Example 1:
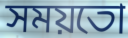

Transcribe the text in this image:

সময়তো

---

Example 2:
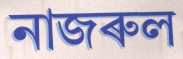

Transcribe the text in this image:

নাজৰুল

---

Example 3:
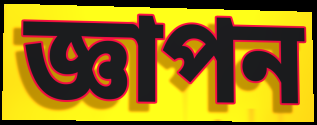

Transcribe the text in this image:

জ্ঞাপন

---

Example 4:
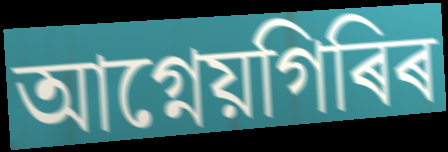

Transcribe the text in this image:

আগ্নেয়গিৰিৰ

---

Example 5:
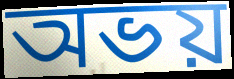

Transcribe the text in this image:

অভয়